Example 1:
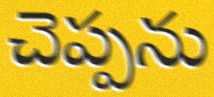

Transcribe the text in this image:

చెప్పను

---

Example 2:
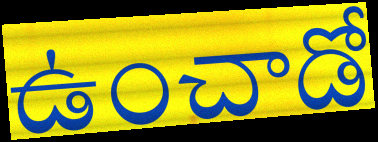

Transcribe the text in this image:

ఉంచాడో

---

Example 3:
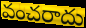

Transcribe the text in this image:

వంచరాదు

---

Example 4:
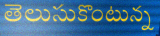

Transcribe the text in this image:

తెలుసుకొంటున్న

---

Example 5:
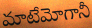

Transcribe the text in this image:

మాటేమోగానీ